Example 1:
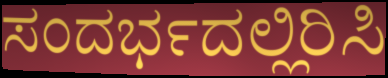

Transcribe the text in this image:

ಸಂದರ್ಭದಲ್ಲಿರಿಸಿ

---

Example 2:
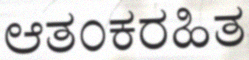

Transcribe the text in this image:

ಆತಂಕರಹಿತ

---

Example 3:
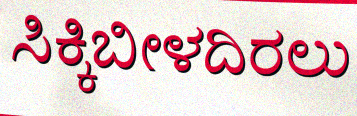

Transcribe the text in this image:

ಸಿಕ್ಕಿಬೀಳದಿರಲು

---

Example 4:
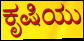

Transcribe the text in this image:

ಕೃಷಿಯು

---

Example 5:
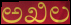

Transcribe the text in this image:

ಅಖಿಲ